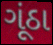
ગૂંઠા